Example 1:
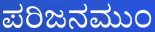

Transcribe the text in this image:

ಪರಿಜನಮುಂ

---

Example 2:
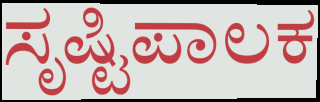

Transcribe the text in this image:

ಸೃಷ್ಟಿಪಾಲಕ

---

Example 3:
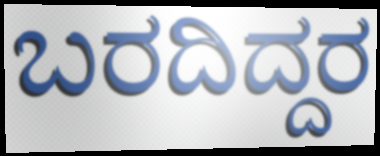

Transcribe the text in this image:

ಬರದಿದ್ದರ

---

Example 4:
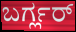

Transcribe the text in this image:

ಬರ್ಗ್ಲರ್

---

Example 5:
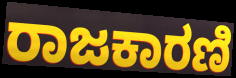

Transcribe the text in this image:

ರಾಜಕಾರಣಿ